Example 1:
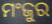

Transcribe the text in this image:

ମଂଜୁର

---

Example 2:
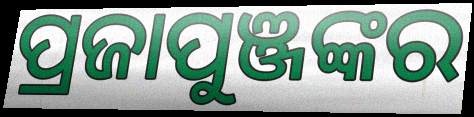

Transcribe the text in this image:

ପ୍ରଜାପୁଞ୍ଜଙ୍କର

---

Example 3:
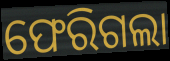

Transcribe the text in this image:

ଫେରିଗଲା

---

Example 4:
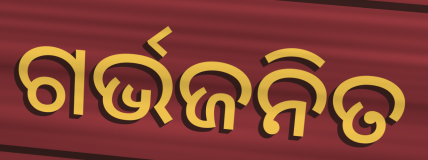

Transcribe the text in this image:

ଗର୍ଭଜନିତ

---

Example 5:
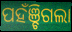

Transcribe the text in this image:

ପହଁଞ୍ଚିଗଲା